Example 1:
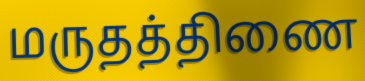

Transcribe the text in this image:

மருதத்திணை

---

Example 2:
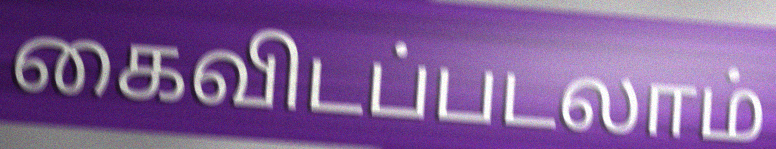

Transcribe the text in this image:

கைவிடப்படலாம்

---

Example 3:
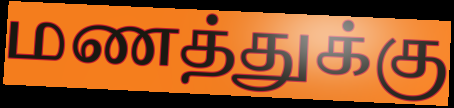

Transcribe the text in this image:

மணத்துக்கு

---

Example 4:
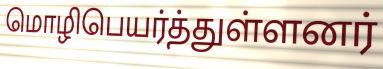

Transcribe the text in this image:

மொழிபெயர்த்துள்ளனர்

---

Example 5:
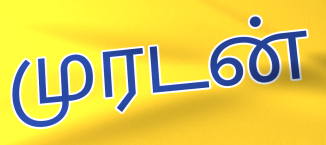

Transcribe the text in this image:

முரடன்